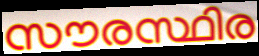
സൗരസ്ഥിര